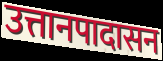
उत्तानपादासन